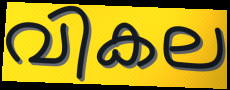
വികല